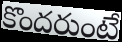
కొందరుంటే